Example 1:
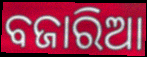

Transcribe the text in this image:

ବଜାରିଆ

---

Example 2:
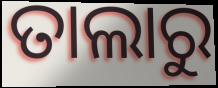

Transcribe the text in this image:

ତାଲାରୁ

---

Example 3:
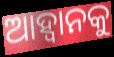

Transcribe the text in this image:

ଆହ୍ବାନକୁ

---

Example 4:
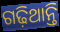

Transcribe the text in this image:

ଗଢ଼ିଥାନ୍ତି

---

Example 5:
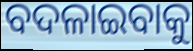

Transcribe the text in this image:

ବଦଳାଇବାକୁ